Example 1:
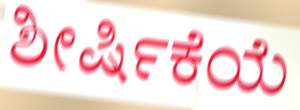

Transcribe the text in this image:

ಶೀರ್ಷಿಕೆಯೆ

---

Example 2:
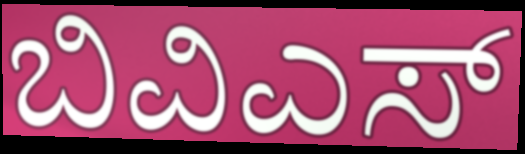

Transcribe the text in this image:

ಬಿವಿಎಸ್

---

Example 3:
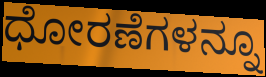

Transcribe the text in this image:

ಧೋರಣೆಗಳನ್ನೂ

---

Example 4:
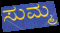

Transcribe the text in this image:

ಸುಮ್ಮ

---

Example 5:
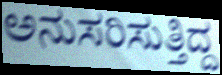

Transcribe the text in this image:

ಅನುಸರಿಸುತ್ತಿದ್ದ